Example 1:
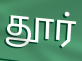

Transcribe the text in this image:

தூர்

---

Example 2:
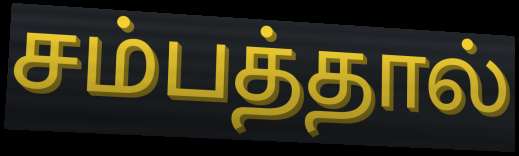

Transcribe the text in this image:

சம்பத்தால்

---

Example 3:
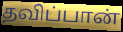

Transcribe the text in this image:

தவிப்பான்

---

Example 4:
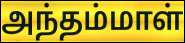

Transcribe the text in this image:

அந்தம்மாள்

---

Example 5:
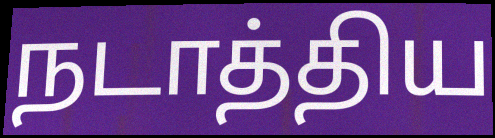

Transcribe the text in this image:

நடாத்திய